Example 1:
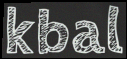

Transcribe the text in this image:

kbal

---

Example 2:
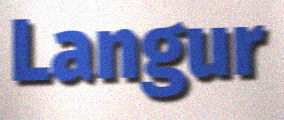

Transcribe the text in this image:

Langur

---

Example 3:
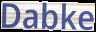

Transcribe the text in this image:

Dabke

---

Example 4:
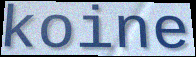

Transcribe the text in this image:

koine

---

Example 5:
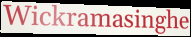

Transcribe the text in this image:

Wickramasinghe